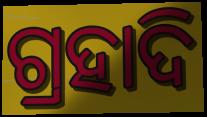
ଗ୍ରହାଦି